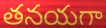
తనయగా